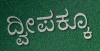
ದ್ವೀಪಕ್ಕೂ